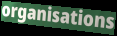
organisations